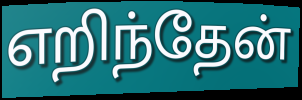
எறிந்தேன்